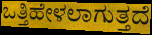
ಒತ್ತಿಹೇಳಲಾಗುತ್ತದೆ